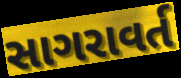
સાગરાવર્ત